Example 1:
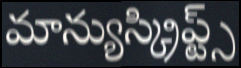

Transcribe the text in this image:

మాన్యుస్క్రిప్ట్స్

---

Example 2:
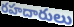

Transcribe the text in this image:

రహదారులు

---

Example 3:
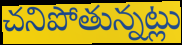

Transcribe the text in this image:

చనిపోతున్నట్లు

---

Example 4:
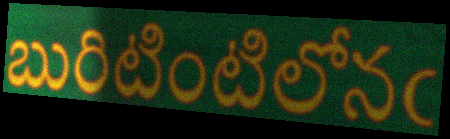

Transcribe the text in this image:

బురిటింటిలోనఁ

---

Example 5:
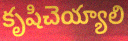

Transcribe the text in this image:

కృషిచెయ్యాలి